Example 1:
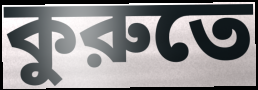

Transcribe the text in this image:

কুরুতে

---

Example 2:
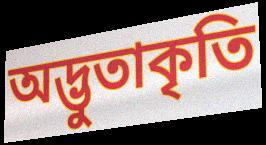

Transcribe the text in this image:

অদ্ভুতাকৃতি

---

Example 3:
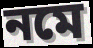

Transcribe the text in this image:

নমে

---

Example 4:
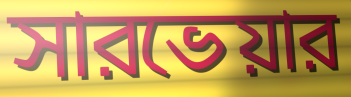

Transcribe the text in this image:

সারভেয়ার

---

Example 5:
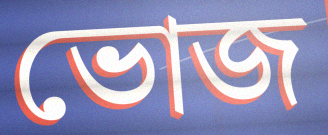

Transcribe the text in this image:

ভোজ